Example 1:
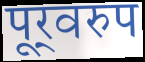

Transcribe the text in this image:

पूर्वरुप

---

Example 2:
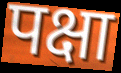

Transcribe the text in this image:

पक्षा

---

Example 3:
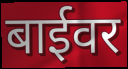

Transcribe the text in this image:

बाईवर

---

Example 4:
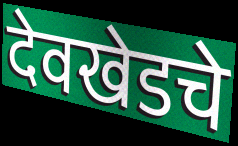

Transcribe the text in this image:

देवखेडचे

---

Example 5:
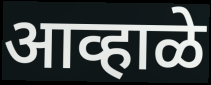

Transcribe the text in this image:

आव्हाळे